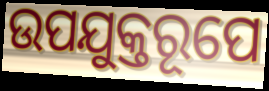
ଉପଯୁକ୍ତରୂପେ